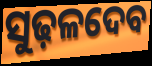
ସୁଢ଼ଳଦେବ